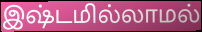
இஷ்டமில்லாமல்